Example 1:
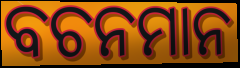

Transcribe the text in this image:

ବଚନମାନ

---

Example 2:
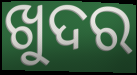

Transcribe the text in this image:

ଖୁଦର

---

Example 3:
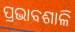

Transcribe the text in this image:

ପ୍ରଭାବଶାଳି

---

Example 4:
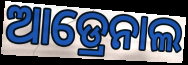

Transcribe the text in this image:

ଆଡ୍ରେନାଲ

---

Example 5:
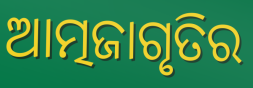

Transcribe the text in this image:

ଆତ୍ମଜାଗୃତିର